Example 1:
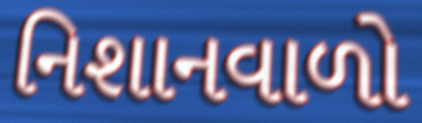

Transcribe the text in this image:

નિશાનવાળો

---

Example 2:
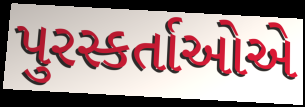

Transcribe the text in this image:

પુરસ્કર્તાઓએ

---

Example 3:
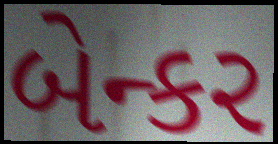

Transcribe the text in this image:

બેન્કર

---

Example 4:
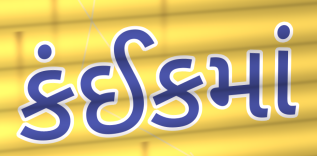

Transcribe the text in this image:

કંઈકમાં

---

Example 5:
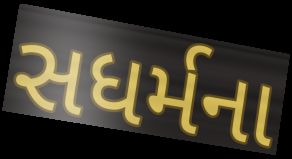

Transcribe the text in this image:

સધર્મના